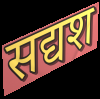
सद्यश